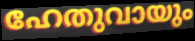
ഹേതുവായും